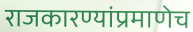
राजकारण्यांप्रमाणेच